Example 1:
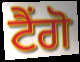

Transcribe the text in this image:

ਟੈਂਗੋ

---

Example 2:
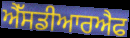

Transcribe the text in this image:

ਐੱਸਡੀਆਰਐਫ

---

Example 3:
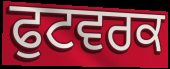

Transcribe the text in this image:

ਫੁਟਵਰਕ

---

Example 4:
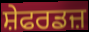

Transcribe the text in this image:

ਸ਼ੇਫਰਡਜ਼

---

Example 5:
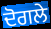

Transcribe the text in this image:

ਦੋਗਲੇ